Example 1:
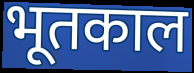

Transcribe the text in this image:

भूतकाल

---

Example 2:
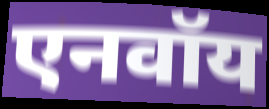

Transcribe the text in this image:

एनवॉय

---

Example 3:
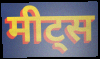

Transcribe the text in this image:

मीट्स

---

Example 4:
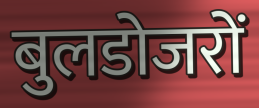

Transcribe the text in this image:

बुलडोजरों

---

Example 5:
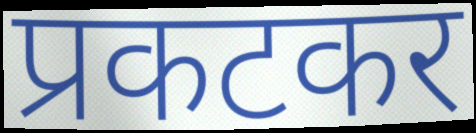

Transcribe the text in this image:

प्रकटकर